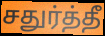
சதுர்த்தீ